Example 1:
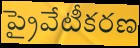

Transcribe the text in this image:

ప్రైవేటీకరణ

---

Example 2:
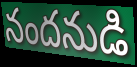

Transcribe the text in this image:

నందనుడి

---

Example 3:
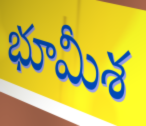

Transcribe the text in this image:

భూమీశ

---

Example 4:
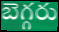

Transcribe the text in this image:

బెగ్గరు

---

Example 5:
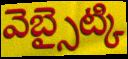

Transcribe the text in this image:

వెబ్సైట్కి